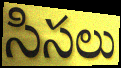
సిసలు